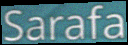
Sarafa